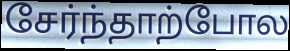
சேர்ந்தாற்போல